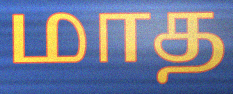
மாத